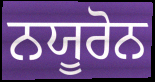
ਨਯੂਰੋਨ